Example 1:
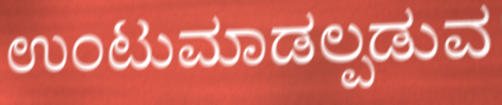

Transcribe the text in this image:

ಉಂಟುಮಾಡಲ್ಪಡುವ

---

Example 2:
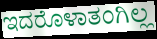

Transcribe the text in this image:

ಇದರೊಳಾತಂಗಿಲ್ಲ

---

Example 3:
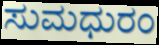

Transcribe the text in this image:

ಸುಮಧುರಂ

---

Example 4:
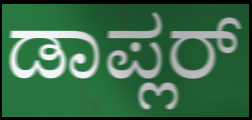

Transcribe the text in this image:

ಡಾಪ್ಲರ್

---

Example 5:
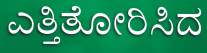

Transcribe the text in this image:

ಎತ್ತಿತೋರಿಸಿದ